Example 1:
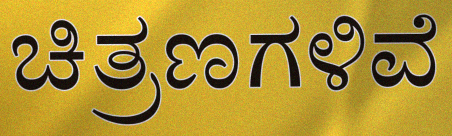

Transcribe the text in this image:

ಚಿತ್ರಣಗಳಿವೆ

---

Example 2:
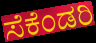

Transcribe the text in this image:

ಸೆಕೆಂಡರಿ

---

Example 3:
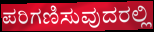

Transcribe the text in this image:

ಪರಿಗಣಿಸುವುದರಲ್ಲಿ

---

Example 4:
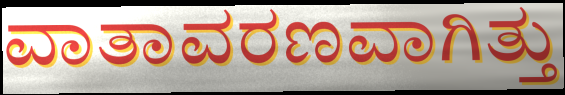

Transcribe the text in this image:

ವಾತಾವರಣವಾಗಿತ್ತು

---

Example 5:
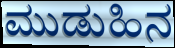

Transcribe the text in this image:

ಮುಡುಹಿನ